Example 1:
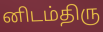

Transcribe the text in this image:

னிடம்திரு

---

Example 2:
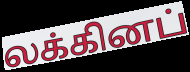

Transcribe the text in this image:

லக்கினப்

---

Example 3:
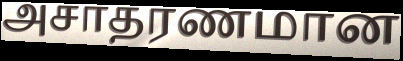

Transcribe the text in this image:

அசாதரணமான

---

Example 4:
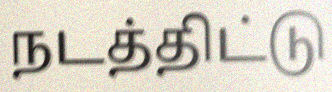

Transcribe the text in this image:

நடத்திட்டு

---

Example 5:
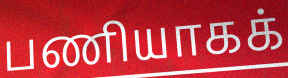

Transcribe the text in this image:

பணியாகக்